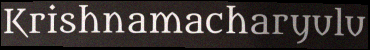
Krishnamacharyulu